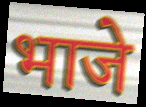
भाजे